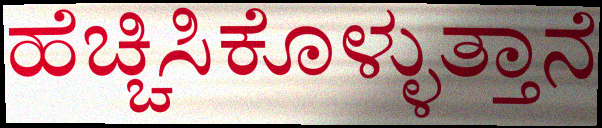
ಹೆಚ್ಚಿಸಿಕೊಳ್ಳುತ್ತಾನೆ